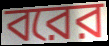
বরের